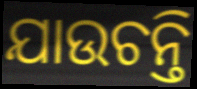
ଯାଉଚନ୍ତି